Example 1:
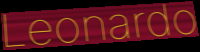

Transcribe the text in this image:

Leonardo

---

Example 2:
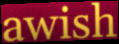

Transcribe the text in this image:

awish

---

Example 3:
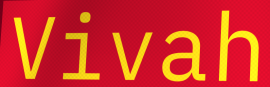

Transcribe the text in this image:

Vivah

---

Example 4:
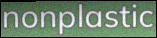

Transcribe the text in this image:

nonplastic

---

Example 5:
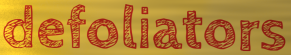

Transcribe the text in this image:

defoliators